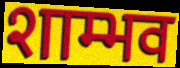
शाम्भव